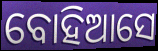
ବୋହିଆସେ